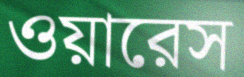
ওয়ারেস